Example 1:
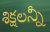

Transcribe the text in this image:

శిక్షలన్నీ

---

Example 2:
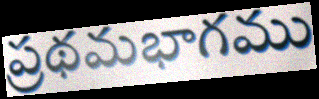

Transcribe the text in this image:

ప్రథమభాగము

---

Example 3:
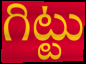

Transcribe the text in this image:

గిట్టు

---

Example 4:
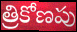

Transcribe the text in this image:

త్రికోణపు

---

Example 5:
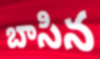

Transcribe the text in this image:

బాసిన